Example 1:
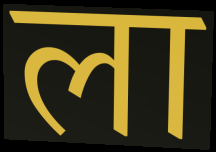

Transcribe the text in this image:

ला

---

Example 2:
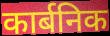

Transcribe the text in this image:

कार्बनिक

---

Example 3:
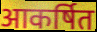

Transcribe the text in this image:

आकर्षित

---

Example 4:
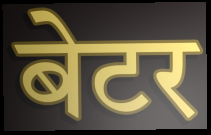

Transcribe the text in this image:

बेटर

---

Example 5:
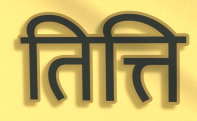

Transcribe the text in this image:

तित्ति